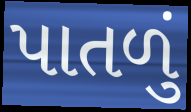
પાતળું